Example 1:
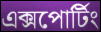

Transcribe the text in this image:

এক্সপোর্টিং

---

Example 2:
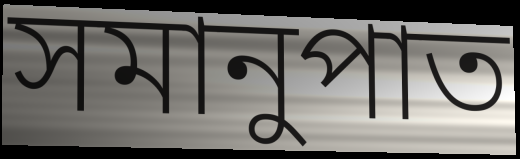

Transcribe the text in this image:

সমানুপাত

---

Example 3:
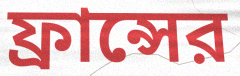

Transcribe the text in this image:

ফ্রান্সের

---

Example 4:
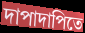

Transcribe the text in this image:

দাপাদাপিতে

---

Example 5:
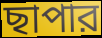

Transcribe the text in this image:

ছাপার